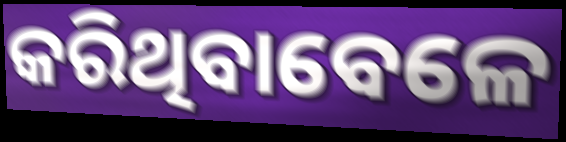
କରିଥିବାବେଳେ